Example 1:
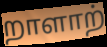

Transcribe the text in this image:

றாளாற்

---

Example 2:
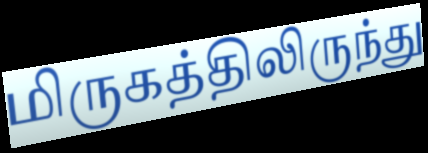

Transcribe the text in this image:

மிருகத்திலிருந்து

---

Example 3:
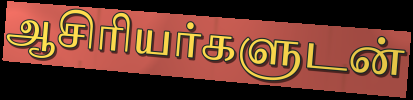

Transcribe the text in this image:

ஆசிரியர்களுடன்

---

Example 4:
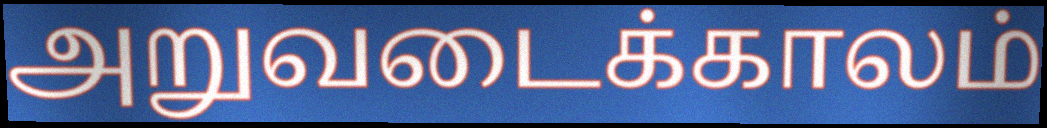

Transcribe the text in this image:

அறுவடைக்காலம்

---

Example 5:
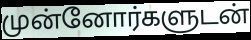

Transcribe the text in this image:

முன்னோர்களுடன்